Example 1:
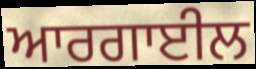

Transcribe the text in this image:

ਆਰਗਾਈਲ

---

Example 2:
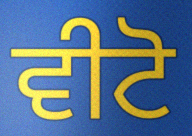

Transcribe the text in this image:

ਵੀਟੋ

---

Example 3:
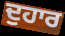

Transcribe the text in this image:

ਦੁਹਾਰ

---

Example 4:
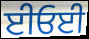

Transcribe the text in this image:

ਈਓਈ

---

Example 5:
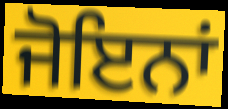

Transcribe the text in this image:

ਜੋਇਨਾਂ